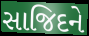
સાજિદને